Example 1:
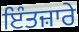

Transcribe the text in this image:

ਇੰਤਜ਼ਾਰੇ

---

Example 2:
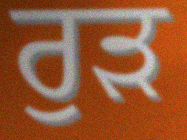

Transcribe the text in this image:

ਰੁੜ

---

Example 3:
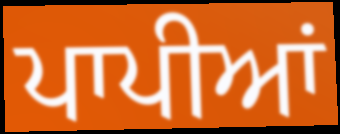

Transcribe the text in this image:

ਪਾਪੀਆਂ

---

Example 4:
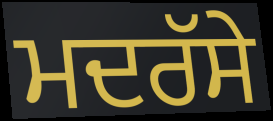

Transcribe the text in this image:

ਮਦਰੱਸੇ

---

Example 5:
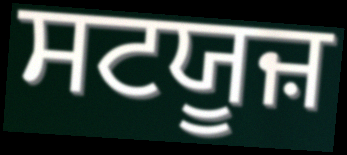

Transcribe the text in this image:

ਸਟਯੂਜ਼